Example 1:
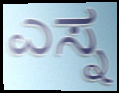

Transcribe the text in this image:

ಎಸ್ನ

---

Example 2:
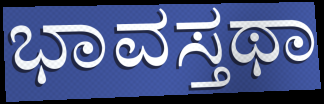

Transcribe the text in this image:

ಭಾವಸ್ತಥಾ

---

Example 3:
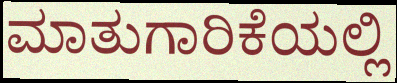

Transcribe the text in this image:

ಮಾತುಗಾರಿಕೆಯಲ್ಲಿ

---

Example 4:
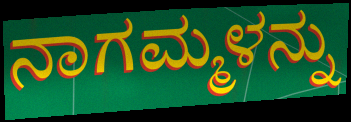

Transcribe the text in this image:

ನಾಗಮ್ಮಳನ್ನು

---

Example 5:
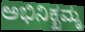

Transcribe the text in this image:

ಅಭಿನಿಕ್ಖಮ್ಮ